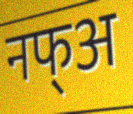
नफ्अ